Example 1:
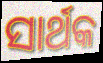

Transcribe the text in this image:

ସାର୍ଥକ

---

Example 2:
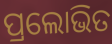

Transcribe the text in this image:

ପ୍ରଲୋଭିତ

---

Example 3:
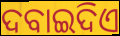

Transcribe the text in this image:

ଦବାଇଦିଏ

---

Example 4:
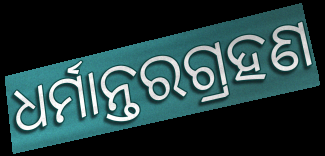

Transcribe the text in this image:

ଧର୍ମାନ୍ତରଗ୍ରହଣ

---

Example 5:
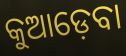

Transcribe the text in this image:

କୁଆଡ଼େବା